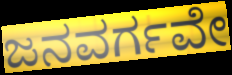
ಜನವರ್ಗವೇ